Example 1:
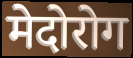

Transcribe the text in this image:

मेदोरोग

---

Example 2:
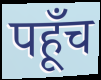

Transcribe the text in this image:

पहूँच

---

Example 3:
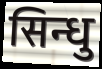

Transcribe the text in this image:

सिन्धु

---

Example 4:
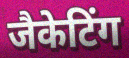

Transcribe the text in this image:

जैकेटिंग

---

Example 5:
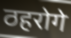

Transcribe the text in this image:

ठहरोगे